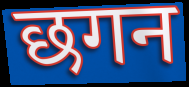
छगन